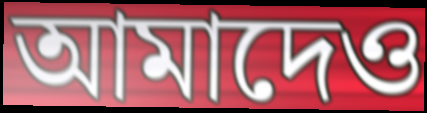
আমাদেও